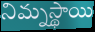
నిమ్నస్థాయి